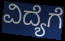
ವಿದ್ಯೆಗೆ